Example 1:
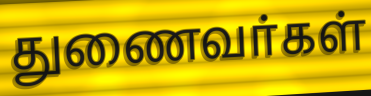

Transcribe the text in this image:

துணைவர்கள்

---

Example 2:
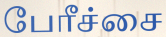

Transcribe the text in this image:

பேரீச்சை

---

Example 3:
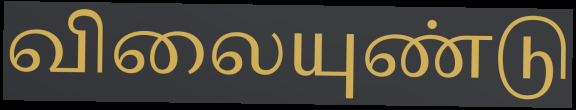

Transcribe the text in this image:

விலையுண்டு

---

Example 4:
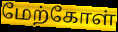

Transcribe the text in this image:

மேற்கோள்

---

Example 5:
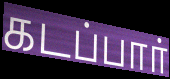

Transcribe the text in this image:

கடப்பார்